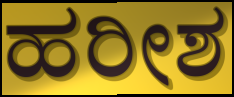
ಹರೀಶ